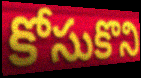
కోసుకొని